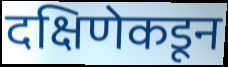
दक्षिणेकडून